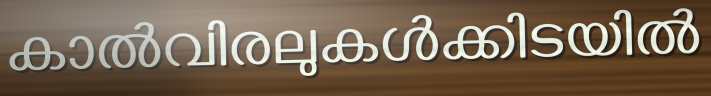
കാൽവിരലുകൾക്കിടയിൽ